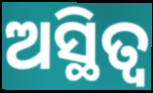
ଅସ୍ଥିତ୍ୱ